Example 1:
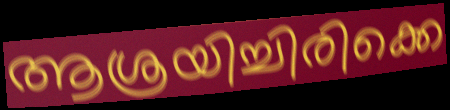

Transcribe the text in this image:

ആശ്രയിച്ചിരിക്കെ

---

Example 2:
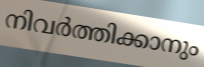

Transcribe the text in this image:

നിവർത്തിക്കാനും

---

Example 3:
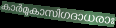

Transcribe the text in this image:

കാർമുകാസിഗദാധരാഃ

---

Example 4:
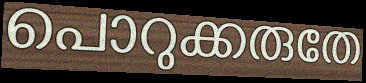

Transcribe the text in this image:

പൊറുക്കരുതേ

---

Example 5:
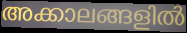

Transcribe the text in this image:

അക്കാലങ്ങളിൽ